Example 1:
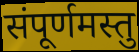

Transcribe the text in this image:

संपूर्णमस्तु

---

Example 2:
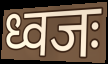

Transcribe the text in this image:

ध्वजः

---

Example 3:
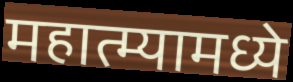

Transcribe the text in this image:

महात्म्यामध्ये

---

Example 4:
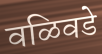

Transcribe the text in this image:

वळिवडे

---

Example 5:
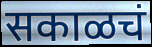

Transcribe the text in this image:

सकाळचं